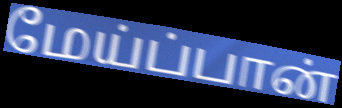
மேய்ப்பான்